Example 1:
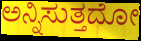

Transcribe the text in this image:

ಅನ್ನಿಸುತ್ತದೋ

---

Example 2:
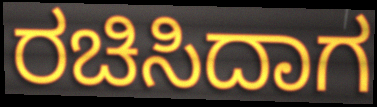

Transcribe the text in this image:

ರಚಿಸಿದಾಗ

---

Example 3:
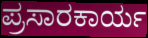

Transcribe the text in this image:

ಪ್ರಸಾರಕಾರ್ಯ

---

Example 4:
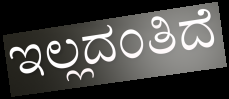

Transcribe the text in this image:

ಇಲ್ಲದಂತಿದೆ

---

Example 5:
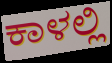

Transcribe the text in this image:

ಕಾಳಲ್ಲಿ